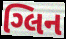
ગ્લિન